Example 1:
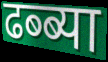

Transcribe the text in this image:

ढब्ब्या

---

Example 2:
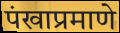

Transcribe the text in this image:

पंखाप्रमाणे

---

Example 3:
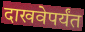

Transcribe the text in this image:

दाखवेपर्यंत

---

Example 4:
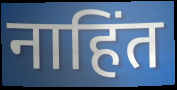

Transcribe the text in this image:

नाहिंत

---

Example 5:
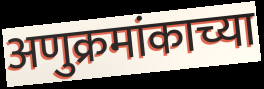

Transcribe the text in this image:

अणुक्रमांकाच्या